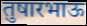
तुषारभाऊ